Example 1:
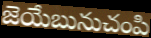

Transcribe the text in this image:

జెయేబునుచంపి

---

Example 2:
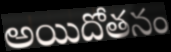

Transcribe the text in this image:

అయిదోతనం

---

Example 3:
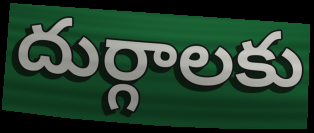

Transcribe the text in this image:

దుర్గాలకు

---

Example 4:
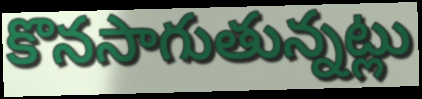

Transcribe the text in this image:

కొనసాగుతున్నట్లు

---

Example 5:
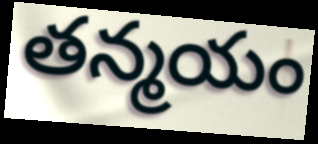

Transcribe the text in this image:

తన్మయం